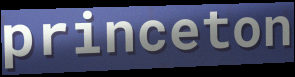
princeton